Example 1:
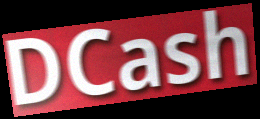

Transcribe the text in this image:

DCash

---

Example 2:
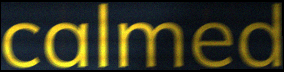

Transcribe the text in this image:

calmed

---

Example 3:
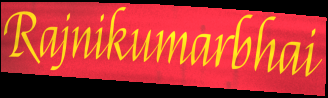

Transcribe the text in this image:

Rajnikumarbhai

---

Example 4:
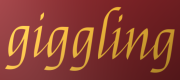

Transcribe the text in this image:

giggling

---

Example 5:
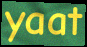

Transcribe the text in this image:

yaat